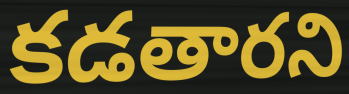
కడతారని